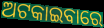
ଅଟକାଇବାରେ